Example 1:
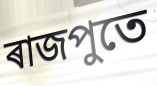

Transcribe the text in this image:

ৰাজপুতে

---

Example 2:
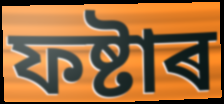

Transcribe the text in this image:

ফষ্টাৰ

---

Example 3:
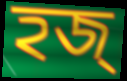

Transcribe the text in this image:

হজ্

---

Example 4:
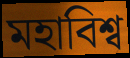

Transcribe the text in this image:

মহাবিশ্ব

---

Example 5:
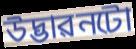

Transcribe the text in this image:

উদ্ভাৱনটো